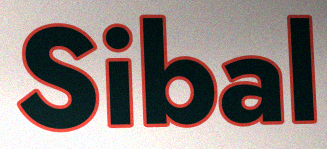
Sibal